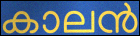
കാലൻ